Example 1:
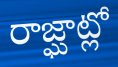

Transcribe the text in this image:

రాజ్ఘాట్లో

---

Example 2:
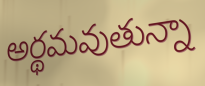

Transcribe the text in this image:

అర్థమవుతున్నా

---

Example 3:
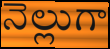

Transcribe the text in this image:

నెల్లుగా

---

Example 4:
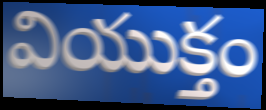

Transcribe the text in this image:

వియుక్తం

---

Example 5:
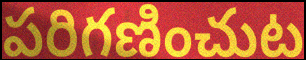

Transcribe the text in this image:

పరిగణించుట